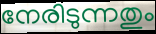
നേരിടുന്നതും